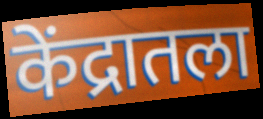
केंद्रातला